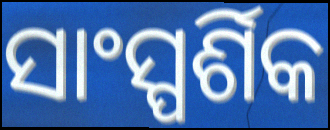
ସାଂସ୍ପର୍ଶିକ